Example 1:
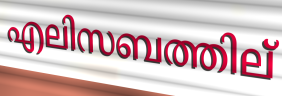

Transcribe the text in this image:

എലിസബത്തില്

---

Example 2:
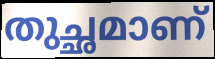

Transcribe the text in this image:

തുച്ഛമാണ്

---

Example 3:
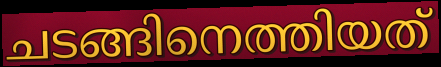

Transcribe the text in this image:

ചടങ്ങിനെത്തിയത്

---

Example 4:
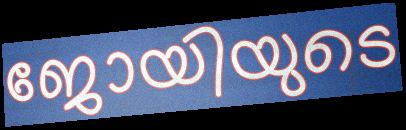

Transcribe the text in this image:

ജോയിയുടെ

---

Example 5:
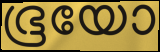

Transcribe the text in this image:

ഭൂയോ